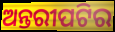
ଅନ୍ତରୀପଟିର